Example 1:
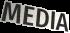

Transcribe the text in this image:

MEDIA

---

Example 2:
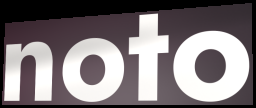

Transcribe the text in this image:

noto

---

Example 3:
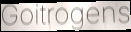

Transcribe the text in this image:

Goitrogens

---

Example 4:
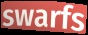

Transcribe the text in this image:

swarfs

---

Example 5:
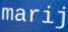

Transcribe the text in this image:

marij